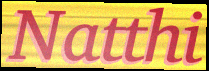
Natthi